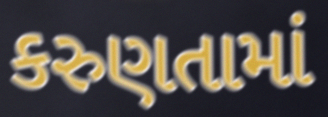
કરુણતામાં